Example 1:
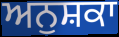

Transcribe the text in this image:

ਅਨੁਸ਼ਕਾ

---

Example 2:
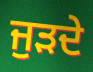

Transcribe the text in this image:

ਜੁੜਦੇ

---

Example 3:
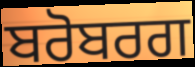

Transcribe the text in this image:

ਬਰੋਬਰਗ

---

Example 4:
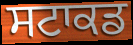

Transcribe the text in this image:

ਸਟਾਕਡ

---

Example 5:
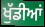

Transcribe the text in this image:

ਖੁੱਡੀਆਂ